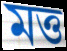
মত্ত